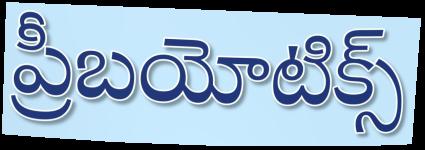
ప్రీబయోటిక్స్